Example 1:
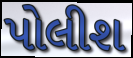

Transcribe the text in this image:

પોલીશ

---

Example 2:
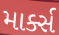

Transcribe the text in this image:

માર્ક્સ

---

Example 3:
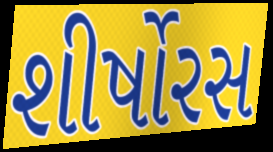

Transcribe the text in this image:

શીર્ષોરસ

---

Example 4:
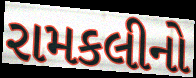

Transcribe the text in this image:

રામકલીનો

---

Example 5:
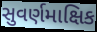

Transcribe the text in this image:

સુવર્ણમાક્ષિક